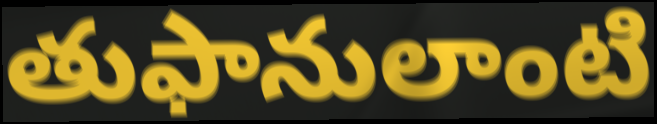
తుఫానులాంటి